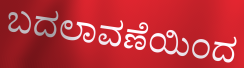
ಬದಲಾವಣೆಯಿಂದ